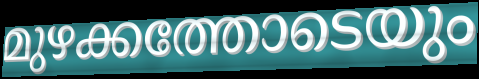
മുഴക്കത്തോടെയും